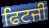
ਫਿਟਜੀ